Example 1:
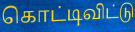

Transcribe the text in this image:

கொட்டிவிட்டு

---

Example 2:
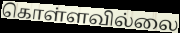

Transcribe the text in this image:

கொள்ளவில்லை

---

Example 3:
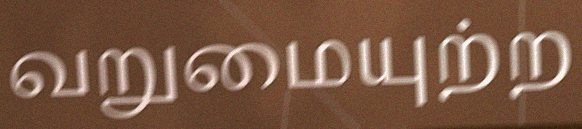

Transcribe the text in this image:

வறுமையுற்ற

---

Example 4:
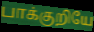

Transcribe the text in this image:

பாக்குறியே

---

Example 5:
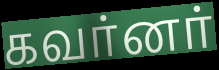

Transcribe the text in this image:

கவர்னர்